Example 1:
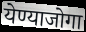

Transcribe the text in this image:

येण्याजोगा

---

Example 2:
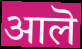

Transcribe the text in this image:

आलॆ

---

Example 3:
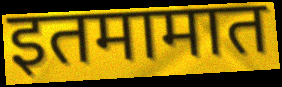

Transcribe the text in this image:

इतमामात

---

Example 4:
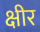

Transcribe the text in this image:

क्षीर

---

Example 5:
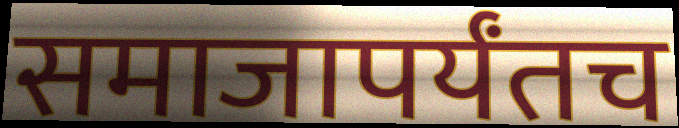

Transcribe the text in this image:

समाजापर्यंतच